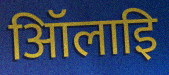
ऑिलाइि